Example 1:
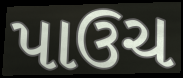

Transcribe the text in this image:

પાઉચ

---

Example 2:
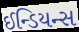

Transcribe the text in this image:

ઈન્ડિયન્સ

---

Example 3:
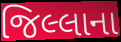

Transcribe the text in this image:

જિલ્લાના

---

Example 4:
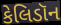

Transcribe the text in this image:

કેલિડૉન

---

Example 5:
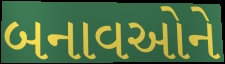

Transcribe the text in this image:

બનાવઓને